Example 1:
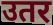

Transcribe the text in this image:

उतर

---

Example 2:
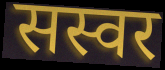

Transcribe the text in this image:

सस्वर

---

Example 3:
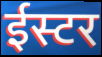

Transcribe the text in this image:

ईस्टर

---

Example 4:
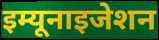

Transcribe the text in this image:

इम्यूनाइजेशन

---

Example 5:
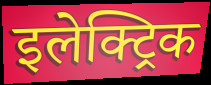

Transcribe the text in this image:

इलेक्ट्रिक